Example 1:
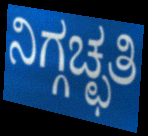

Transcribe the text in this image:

ನಿಗ್ಗಚ್ಛತಿ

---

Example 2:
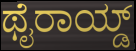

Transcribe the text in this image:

ಥೈರಾಯ್ಡ್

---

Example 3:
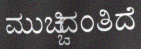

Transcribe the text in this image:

ಮುಚ್ಚಿದಂತಿದೆ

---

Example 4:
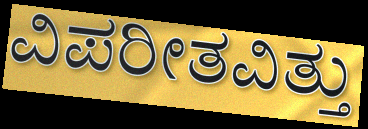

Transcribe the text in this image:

ವಿಪರೀತವಿತ್ತು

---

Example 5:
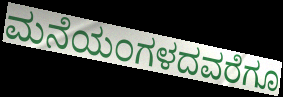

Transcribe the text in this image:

ಮನೆಯಂಗಳದವರೆಗೂ